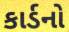
કાર્ડનો